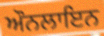
ਔਨਲਾਇਨ